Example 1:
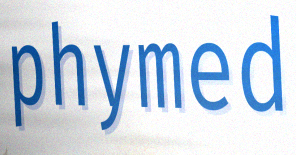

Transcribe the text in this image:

phymed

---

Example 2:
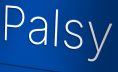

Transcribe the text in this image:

Palsy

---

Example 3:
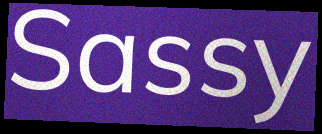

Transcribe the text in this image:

Sassy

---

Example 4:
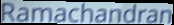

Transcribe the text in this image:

Ramachandran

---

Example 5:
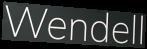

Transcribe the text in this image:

Wendell